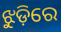
ଝୁଡ଼ିରେ